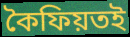
কৈফিয়তই